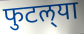
फुटल्या